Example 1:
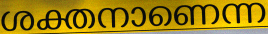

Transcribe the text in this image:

ശക്തനാണെന്ന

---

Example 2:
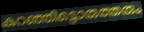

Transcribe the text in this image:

കുറഞ്ഞിട്ടൊരുത്തരും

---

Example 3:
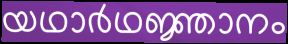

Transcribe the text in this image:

യഥാർഥജ്ഞാനം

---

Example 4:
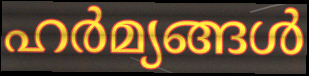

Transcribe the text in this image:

ഹർമ്യങ്ങൾ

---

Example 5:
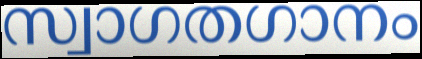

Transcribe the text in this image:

സ്വാഗതഗാനം